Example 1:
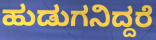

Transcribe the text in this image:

ಹುಡುಗನಿದ್ದರೆ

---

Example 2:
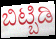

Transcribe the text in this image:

ಬಿಟ್ಬಿಡಿ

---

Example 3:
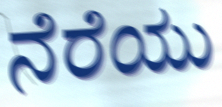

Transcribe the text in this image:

ನೆರೆಯು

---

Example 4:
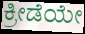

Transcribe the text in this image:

ಕ್ರೀಡೆಯೇ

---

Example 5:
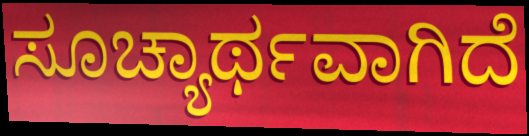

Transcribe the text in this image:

ಸೂಚ್ಯಾರ್ಥವಾಗಿದೆ